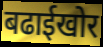
बढाईखोर